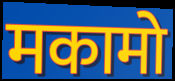
मकामो